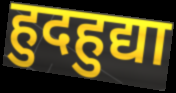
हुदहुद्या